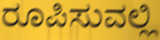
ರೂಪಿಸುವಲ್ಲಿ